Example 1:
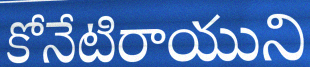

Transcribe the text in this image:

కోనేటిరాయుని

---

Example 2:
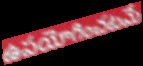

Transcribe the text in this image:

ఉపయోగించటమే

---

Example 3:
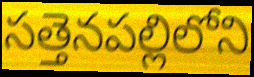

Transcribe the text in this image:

సత్తెనపల్లిలోని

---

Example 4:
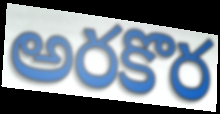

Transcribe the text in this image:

అరకొర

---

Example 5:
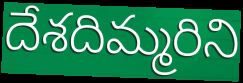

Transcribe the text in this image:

దేశదిమ్మరిని